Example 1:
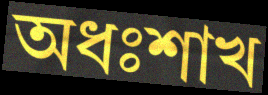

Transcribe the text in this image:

অধঃশাখ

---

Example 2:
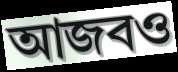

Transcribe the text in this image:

আজবও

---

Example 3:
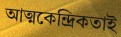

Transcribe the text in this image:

আত্মকেন্দ্রিকতাই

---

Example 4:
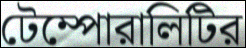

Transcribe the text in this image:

টেম্পোরালিটির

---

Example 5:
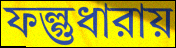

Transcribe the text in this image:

ফল্গুধারায়